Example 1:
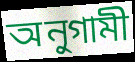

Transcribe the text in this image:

অনুগামী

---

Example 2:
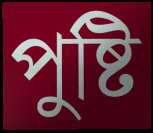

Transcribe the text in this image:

পুষ্টি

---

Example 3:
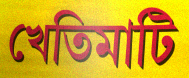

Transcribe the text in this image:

খেতিমাটি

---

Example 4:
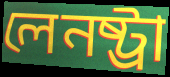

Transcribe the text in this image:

লেনষ্ট্ৰা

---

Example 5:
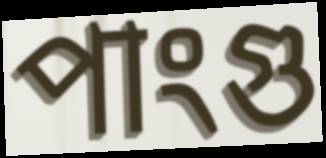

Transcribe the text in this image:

পাংগু